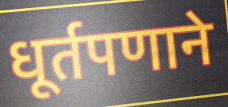
धूर्तपणाने